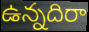
ఉన్నదిరా